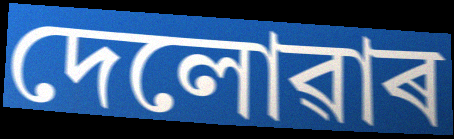
দেলোৱাৰ